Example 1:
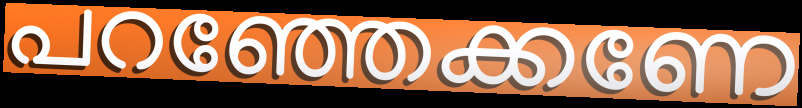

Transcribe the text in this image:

പറഞ്ഞേക്കണേ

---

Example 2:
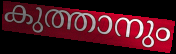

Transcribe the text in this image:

കുത്താനും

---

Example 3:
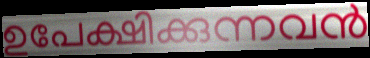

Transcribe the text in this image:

ഉപേക്ഷിക്കുന്നവൻ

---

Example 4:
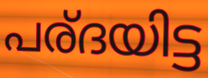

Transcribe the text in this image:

പര്ദയിട്ട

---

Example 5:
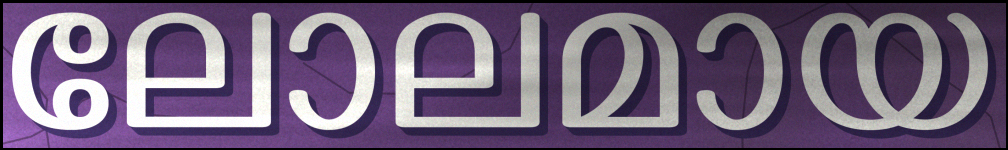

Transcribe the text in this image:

ലോലമായ